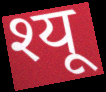
श्यू